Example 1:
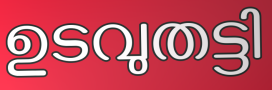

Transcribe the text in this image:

ഉടവുതട്ടി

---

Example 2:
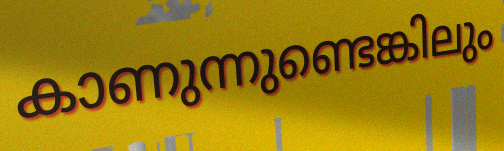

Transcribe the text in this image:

കാണുന്നുണ്ടെങ്കിലും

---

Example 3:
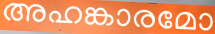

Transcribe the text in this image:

അഹങ്കാരമോ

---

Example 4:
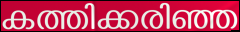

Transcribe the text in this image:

കത്തിക്കരിഞ്ഞ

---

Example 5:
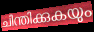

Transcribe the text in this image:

ചിന്തിക്കുകയും